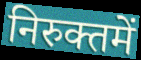
निरुक्तमें